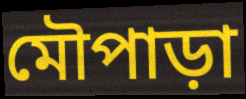
মৌপাড়া